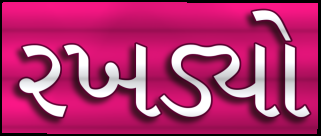
રખડ્યો